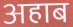
अहाब